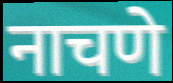
नाचणे